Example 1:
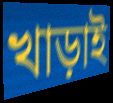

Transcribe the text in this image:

খাড়াই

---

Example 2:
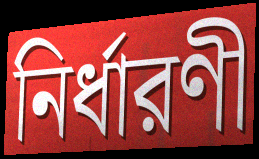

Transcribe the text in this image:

নির্ধারণী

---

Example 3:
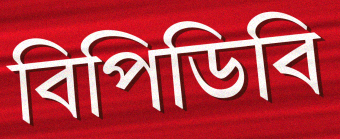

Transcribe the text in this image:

বিপিডিবি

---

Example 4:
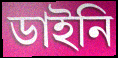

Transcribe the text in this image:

ডাইনি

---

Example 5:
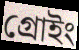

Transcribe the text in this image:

গ্রোইং